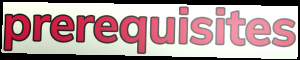
prerequisites